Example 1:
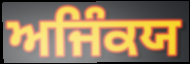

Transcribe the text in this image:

ਅਜਿੰਕਯ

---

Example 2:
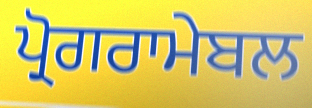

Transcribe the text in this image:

ਪ੍ਰੋਗਰਾਮੇਬਲ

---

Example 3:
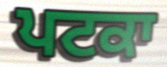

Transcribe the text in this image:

ਪਟਕਾ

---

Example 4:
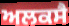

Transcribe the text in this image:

ਅਲਕਸੈ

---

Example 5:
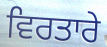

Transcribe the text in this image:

ਵਿਰਤਾਰੇ